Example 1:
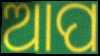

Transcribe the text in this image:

ଆପ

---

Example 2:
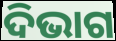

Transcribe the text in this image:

ଦିଭାଗ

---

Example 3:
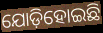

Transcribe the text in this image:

ଯୋଡ଼ିହୋଇଛି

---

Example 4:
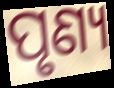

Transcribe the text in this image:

ପୃଣ୍ୟ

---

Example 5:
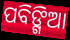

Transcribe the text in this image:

ପବିଙ୍ଗିଆ